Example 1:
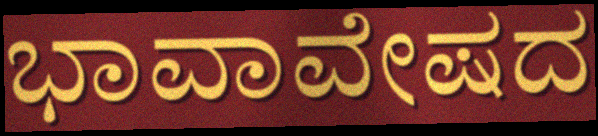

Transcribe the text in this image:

ಭಾವಾವೇಷದ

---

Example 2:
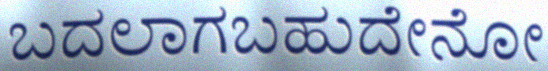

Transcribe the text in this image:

ಬದಲಾಗಬಹುದೇನೋ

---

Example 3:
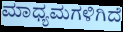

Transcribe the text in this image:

ಮಾಧ್ಯಮಗಳಿಗಿದೆ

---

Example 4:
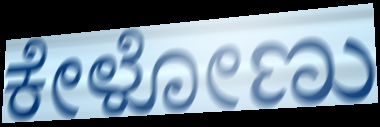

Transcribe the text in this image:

ಕೇಳೋಣು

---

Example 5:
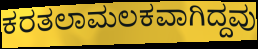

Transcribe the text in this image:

ಕರತಲಾಮಲಕವಾಗಿದ್ದವು